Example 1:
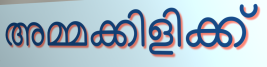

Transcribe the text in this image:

അമ്മക്കിളിക്ക്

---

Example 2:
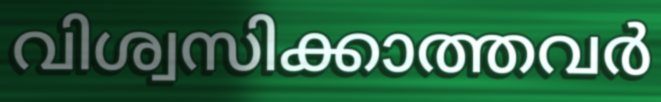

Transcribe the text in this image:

വിശ്വസിക്കാത്തവർ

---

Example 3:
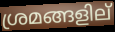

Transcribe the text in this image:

ശ്രമങ്ങളില്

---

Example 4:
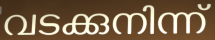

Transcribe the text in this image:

വടക്കുനിന്ന്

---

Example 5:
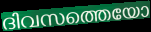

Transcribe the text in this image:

ദിവസത്തെയോ